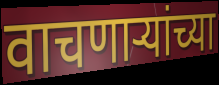
वाचणार्‍यांच्या